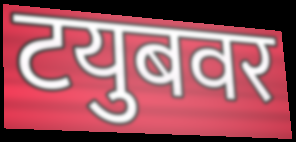
टयुबवर